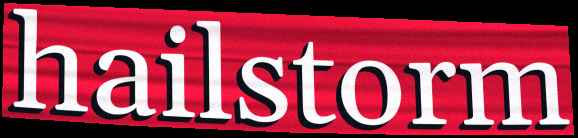
hailstorm